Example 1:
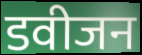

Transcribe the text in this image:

डवीजन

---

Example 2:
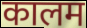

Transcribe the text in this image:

कालम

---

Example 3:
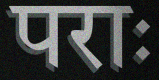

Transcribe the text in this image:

पराः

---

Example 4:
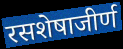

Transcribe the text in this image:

रसशेषाजीर्ण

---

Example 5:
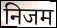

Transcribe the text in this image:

निजम